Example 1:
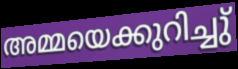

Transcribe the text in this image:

അമ്മയെക്കുറിച്ചു്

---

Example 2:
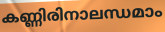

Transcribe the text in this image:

കണ്ണിരിനാലന്ധമാം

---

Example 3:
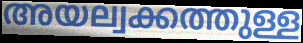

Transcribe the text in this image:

അയല്വക്കത്തുള്ള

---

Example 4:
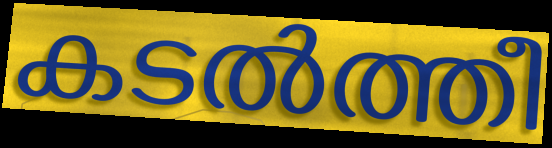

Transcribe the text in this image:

കടൽത്തീ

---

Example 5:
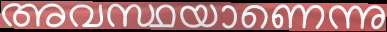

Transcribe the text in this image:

അവസ്ഥയാണെന്നു